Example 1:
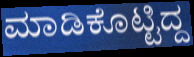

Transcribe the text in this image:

ಮಾಡಿಕೊಟ್ಟಿದ್ದ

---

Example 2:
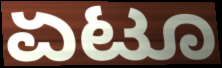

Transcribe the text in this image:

ಏಟೂ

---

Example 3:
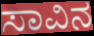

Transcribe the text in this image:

ಸಾವಿನ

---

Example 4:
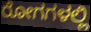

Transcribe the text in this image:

ರೋಗಗಳಲ್ಲಿ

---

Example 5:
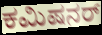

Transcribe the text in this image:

ಕಮಿಷನರ್